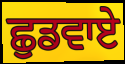
ਛੁਡਵਾਏ